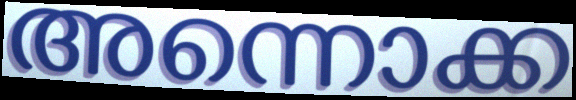
അന്നൊക്ക